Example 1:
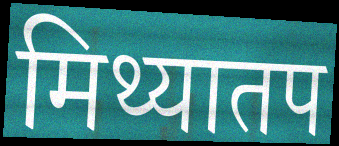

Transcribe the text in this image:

मिथ्यातप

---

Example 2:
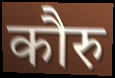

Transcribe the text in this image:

कौरु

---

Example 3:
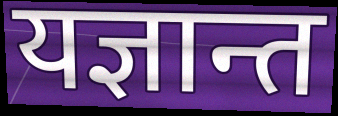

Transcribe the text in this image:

यज्ञान्त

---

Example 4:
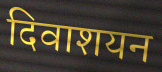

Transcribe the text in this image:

दिवाशयन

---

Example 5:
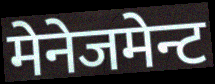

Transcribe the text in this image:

मेनेजमेन्ट